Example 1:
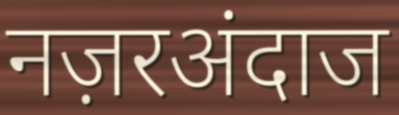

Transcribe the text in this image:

नज़रअंदाज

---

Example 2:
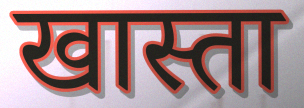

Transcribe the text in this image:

खास्ता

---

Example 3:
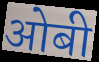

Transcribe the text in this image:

ओबी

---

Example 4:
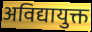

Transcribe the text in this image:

अविद्यायुक्त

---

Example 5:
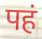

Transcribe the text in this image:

पहं